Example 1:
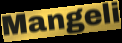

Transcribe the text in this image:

Mangeli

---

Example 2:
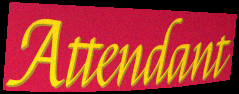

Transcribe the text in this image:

Attendant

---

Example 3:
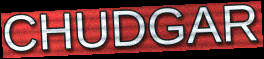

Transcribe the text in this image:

CHUDGAR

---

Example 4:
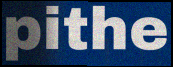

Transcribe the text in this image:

pithe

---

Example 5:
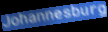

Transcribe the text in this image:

Johannesburg